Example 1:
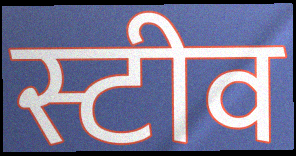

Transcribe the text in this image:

स्‍टीव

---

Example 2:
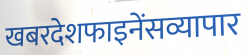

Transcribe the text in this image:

खबरदेशफाइनेंसव्यापार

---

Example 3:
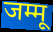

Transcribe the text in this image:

जम्मू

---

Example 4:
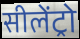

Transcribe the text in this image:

सीलेंट्रो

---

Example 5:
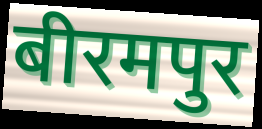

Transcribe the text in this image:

बीरमपुर